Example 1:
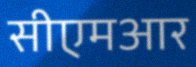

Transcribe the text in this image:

सीएमआर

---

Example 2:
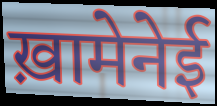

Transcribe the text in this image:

ख़ामेनेई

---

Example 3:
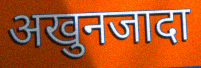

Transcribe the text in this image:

अखुनजादा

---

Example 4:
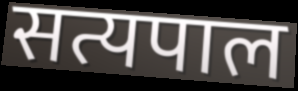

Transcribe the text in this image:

सत्यपाल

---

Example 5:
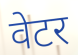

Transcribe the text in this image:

वेटर